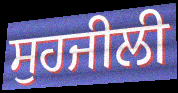
ਸੁਹਜੀਲੀ